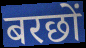
बरछों